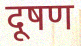
दूषण